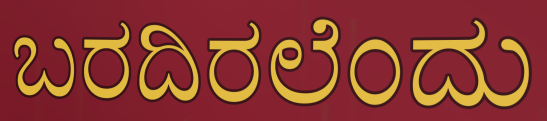
ಬರದಿರಲೆಂದು